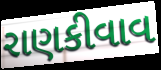
રાણકીવાવ